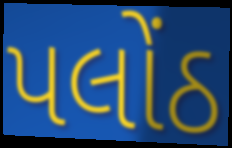
પલોંઠ